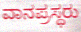
ವಾನಪ್ರಸ್ಥರು